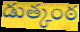
డుత్కంఠ